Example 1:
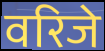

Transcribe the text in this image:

वरिजे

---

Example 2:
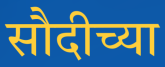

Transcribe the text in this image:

सौदीच्या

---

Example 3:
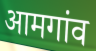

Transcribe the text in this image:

आमगांव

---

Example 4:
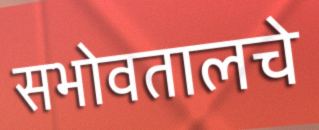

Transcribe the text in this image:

सभोवतालचे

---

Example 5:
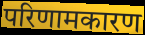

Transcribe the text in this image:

परिणामकारण